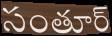
సంతూర్